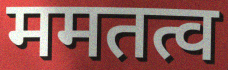
ममतत्व